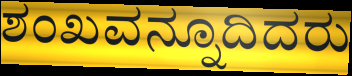
ಶಂಖವನ್ನೂದಿದರು